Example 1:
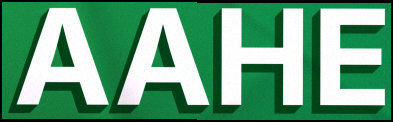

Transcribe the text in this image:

AAHE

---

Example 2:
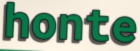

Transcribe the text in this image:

honte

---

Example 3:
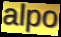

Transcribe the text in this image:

alpo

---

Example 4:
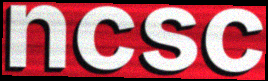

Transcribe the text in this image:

ncsc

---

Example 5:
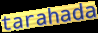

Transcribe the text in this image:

tarahada